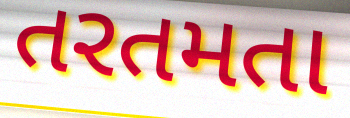
તરતમતા